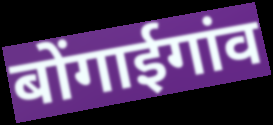
बोंगाईगांव